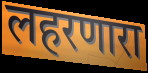
लहरणारा